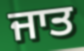
ਜਾਤ